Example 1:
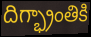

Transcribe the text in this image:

దిగ్భ్రాంతికి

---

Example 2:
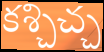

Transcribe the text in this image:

కశ్చిచ్చ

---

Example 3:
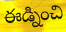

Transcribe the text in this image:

ఈడ్నించి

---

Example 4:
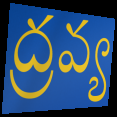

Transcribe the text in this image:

ద్రవ్య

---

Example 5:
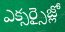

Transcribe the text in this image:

ఎక్సర్సైజ్లో